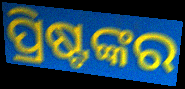
ପ୍ରିଷ୍ଟଙ୍କର